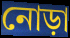
নোড়া